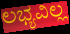
ಲಭ್ಯವಿಲ್ಲ